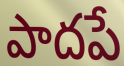
పాదపే